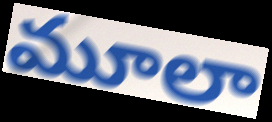
మూలా